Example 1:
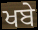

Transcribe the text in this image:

ਖਬੇ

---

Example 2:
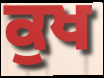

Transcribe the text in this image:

ਕੁਖ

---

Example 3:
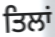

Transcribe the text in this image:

ਤਿਲਾਂ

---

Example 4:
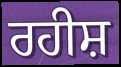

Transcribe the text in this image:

ਰਹੀਸ਼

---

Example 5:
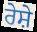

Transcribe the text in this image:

ਰੇਸ਼ੇ